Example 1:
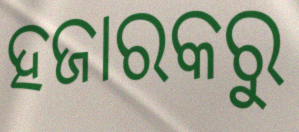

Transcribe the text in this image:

ହଜାରକରୁ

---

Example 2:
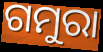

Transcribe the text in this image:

ଗମୁରା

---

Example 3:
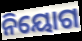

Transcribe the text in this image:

ନିୟୋଗ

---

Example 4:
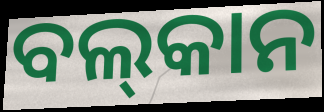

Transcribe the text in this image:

ବଲ୍‌କାନ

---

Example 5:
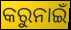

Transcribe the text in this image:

କରୁନାଇଁ